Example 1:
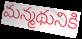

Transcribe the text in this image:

మన్మథునికి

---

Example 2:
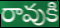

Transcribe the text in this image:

రావుకి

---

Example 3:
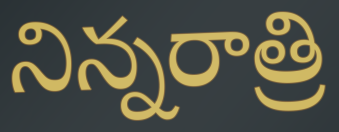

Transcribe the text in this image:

నిన్నరాత్రి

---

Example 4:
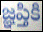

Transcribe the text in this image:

జ్ఞప్తికి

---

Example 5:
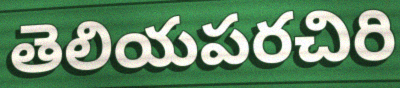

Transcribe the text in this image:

తెలియపరచిరి